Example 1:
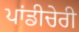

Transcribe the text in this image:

ਪਾਂਡੀਚੇਰੀ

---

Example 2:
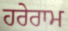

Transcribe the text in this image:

ਹਰੇਰਾਮ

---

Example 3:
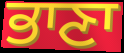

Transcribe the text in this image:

ਭਾਣਾ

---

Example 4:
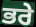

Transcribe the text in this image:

ਭਰੇ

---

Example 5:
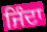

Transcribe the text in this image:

ਜਿੰਦਾ